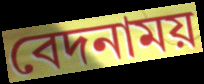
বেদনাময়